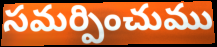
సమర్పించుము